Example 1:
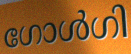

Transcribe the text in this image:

ഗോൾഗി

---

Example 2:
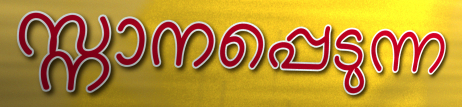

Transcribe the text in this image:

സ്നാനപ്പെടുന്ന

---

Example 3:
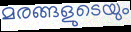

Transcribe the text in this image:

മരങ്ങളുടെയും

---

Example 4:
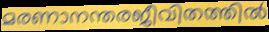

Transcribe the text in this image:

മരണാനന്തരജീവിതത്തിൽ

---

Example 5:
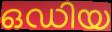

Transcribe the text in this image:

ഒഡിയ